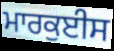
ਮਾਰਕੁਈਸ